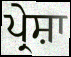
ਪ੍ਰੇਸ਼ਾ